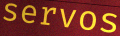
servos